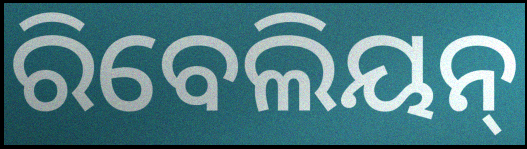
ରିବେଲିୟନ୍